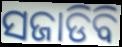
ସଜାଡିବି